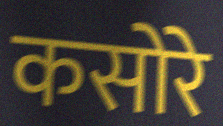
कसोरे